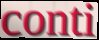
conti